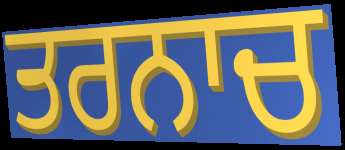
ਤਰਨਾਚ